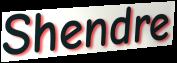
Shendre